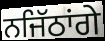
ਨਜਿੱਠਾਂਗੇ